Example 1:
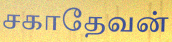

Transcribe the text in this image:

சகாதேவன்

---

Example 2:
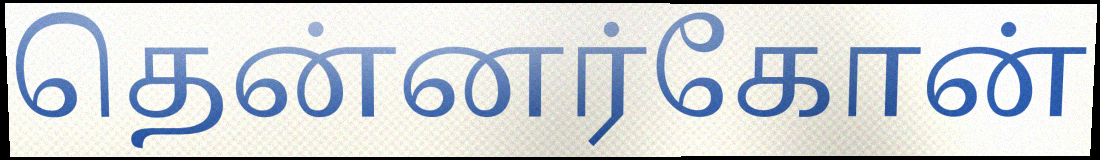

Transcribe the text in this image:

தென்னர்கோன்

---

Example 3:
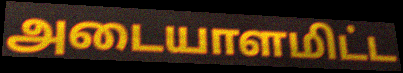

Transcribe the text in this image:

அடையாளமிட்ட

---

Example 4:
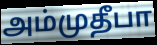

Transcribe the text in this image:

அம்முதீபா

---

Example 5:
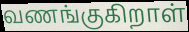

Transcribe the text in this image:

வணங்குகிறாள்